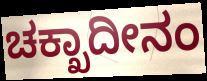
ಚಕ್ಖಾದೀನಂ